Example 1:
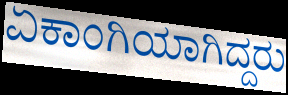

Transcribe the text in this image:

ಏಕಾಂಗಿಯಾಗಿದ್ದರು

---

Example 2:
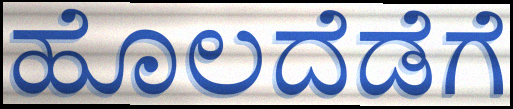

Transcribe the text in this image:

ಹೊಲದೆಡೆಗೆ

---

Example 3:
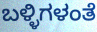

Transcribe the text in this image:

ಬಳ್ಳಿಗಳಂತೆ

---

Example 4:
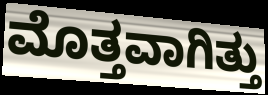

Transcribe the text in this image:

ಮೊತ್ತವಾಗಿತ್ತು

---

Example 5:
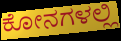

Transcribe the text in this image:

ಕೋನಗಳಲ್ಲಿ